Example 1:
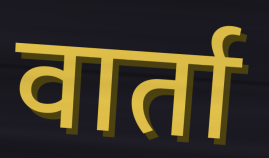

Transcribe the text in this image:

वार्ता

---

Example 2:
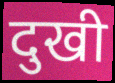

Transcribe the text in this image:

दुखी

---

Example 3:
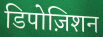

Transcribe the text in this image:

डिपोज़िशन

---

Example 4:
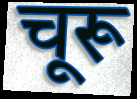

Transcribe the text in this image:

चूरू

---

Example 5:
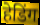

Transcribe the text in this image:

हेडिंग